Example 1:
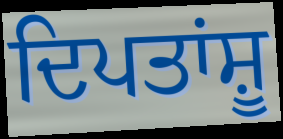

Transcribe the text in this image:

ਦਿਪਤਾਂਸ਼ੂ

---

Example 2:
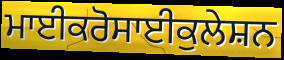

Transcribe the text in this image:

ਮਾਈਕਰੋਸਾਈਕੁਲੇਸ਼ਨ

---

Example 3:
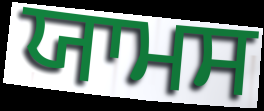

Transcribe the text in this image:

ਯਾਮਸ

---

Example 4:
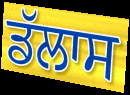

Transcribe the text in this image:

ਡੱਲਾਸ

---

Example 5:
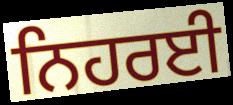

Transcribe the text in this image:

ਨਿਹਰਈ